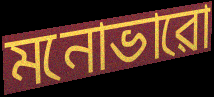
মনোভাৱো